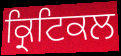
ਕ੍ਰਿਟਿਕਲ